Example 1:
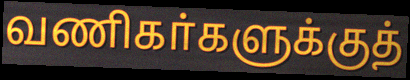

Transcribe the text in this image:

வணிகர்களுக்குத்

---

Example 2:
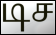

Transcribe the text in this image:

டிச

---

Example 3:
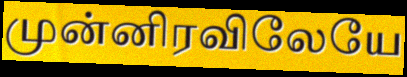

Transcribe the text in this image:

முன்னிரவிலேயே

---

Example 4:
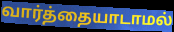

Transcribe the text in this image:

வார்த்தையாடாமல்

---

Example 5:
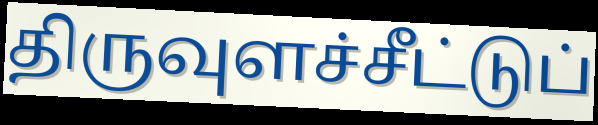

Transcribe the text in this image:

திருவுளச்சீட்டுப்